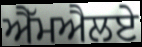
ਐੱਮਐਲਏ